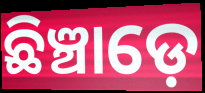
ଛିଞ୍ଚାଡ଼େ